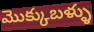
మొక్కుబళ్ళు